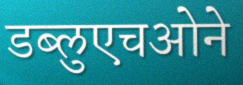
डब्लुएचओने